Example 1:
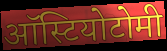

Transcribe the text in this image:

ऑस्टियोटोमी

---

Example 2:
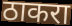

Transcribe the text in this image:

ठाकरा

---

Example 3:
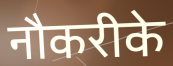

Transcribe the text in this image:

नौकरीके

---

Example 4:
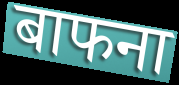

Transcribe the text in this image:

बाफना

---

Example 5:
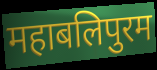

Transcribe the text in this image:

महाबलिपुरम